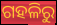
ଗହଳିରୁ